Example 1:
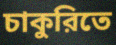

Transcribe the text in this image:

চাকুরিতে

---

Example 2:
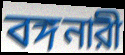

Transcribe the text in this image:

বঙ্গনারী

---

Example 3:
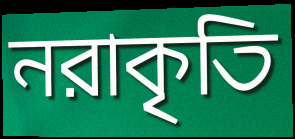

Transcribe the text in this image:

নরাকৃতি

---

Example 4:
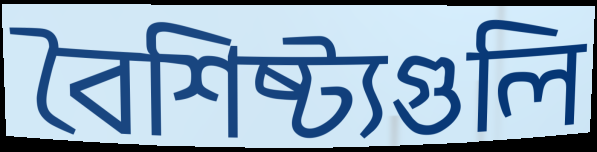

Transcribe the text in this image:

বৈশিষ্ট্যগুলি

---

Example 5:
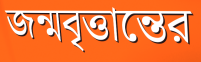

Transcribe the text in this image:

জন্মবৃত্তান্তের